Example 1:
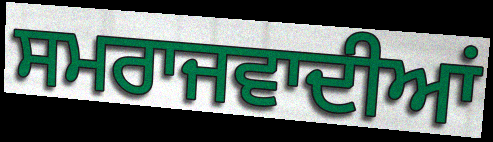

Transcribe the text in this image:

ਸਮਰਾਜਵਾਦੀਆਂ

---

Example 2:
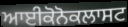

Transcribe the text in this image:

ਆਈਕੋਨੋਕਲਾਸਟ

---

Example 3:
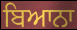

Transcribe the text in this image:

ਬਿਆਨਾ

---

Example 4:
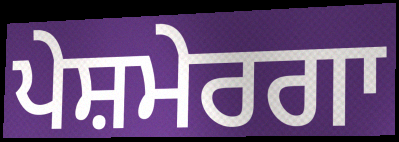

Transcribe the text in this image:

ਪੇਸ਼ਮੇਰਗਾ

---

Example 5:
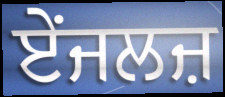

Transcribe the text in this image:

ਏਂਜਲਜ਼